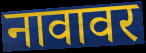
नावावर